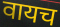
वायच